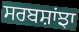
ਸਰਬਸ਼ਾਂਝਾ